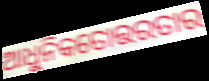
ଆଧୁନିକତୋତ୍ତରତାର